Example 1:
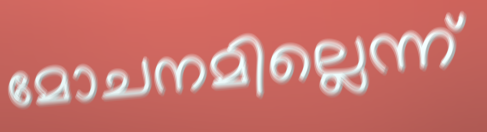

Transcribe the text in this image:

മോചനമില്ലെന്ന്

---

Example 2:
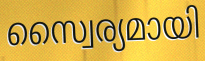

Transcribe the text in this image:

സ്വൈര്യമായി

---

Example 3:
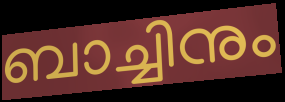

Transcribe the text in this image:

ബാച്ചിനും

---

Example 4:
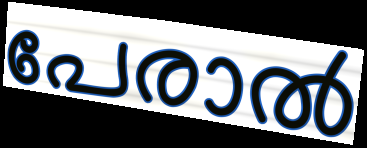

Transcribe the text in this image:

പേരാൽ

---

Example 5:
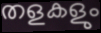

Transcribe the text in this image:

തളകളും